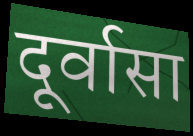
दूर्वासा